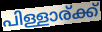
പിള്ളാര്ക്ക്